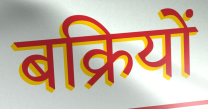
बक्रियों